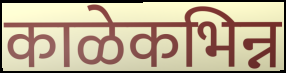
काळेकभिन्न